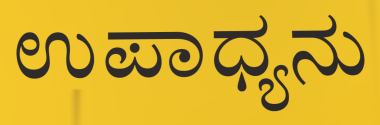
ಉಪಾಧ್ಯನು